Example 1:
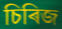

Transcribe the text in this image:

চিৰিজ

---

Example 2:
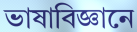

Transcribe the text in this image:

ভাষাবিজ্ঞানে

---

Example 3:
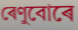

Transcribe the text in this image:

ৰেণুবোৰে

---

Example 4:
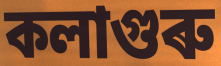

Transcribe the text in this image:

কলাগুৰু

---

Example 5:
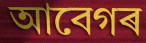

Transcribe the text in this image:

আবেগৰ